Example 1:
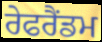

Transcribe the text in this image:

ਰੇਫਰੈਂਡਮ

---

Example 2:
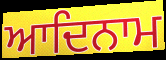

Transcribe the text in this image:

ਆਦਿਨਾਮ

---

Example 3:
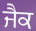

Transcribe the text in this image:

ਜੈਕ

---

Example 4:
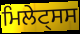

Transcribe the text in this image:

ਮਿਲੇਟ੍ਸਸ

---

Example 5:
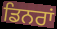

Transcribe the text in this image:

ਡਿਨਰਾਂ